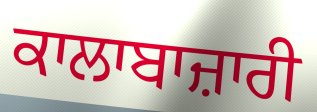
ਕਾਲਾਬਾਜ਼ਾਰੀ